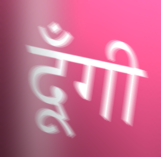
दूँगी